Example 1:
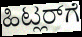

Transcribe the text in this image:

ಹಿಟ್ಲರ್‌ಗೆ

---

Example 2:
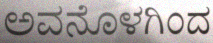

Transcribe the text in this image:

ಅವನೊಳಗಿಂದ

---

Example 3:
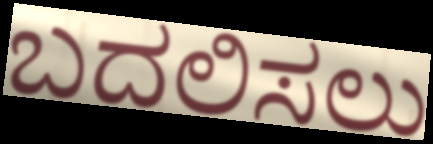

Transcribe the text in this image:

ಬದಲಿಸಲು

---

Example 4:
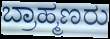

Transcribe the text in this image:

ಬ್ರಾಹ್ಮಣರು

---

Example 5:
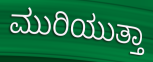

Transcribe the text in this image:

ಮುರಿಯುತ್ತಾ